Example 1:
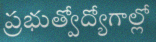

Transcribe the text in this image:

ప్రభుత్వోద్యోగాల్లో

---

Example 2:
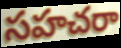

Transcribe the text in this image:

సహచరా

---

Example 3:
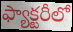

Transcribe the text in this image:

ఫ్యాక్టరీలో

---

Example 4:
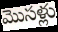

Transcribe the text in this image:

మొసళ్లు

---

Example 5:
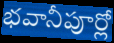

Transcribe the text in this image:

భవానీపూర్లో